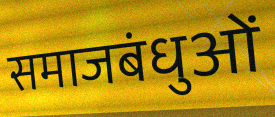
समाजबंधुओं